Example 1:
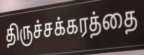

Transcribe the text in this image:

திருச்சக்கரத்தை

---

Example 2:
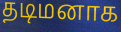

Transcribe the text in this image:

தடிமனாக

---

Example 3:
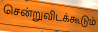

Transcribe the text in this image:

சென்றுவிடக்கூடும்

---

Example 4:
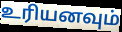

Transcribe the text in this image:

உரியனவும்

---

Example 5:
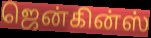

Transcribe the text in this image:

ஜென்கின்ஸ்